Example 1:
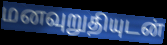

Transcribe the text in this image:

மனவுறுதியுடன்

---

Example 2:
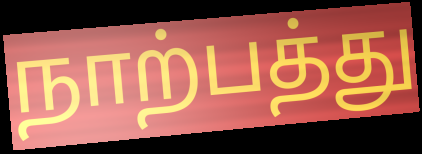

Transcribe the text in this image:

நாற்பத்து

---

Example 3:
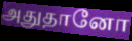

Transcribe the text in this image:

அதுதானோ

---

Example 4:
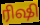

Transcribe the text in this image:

ரிஷி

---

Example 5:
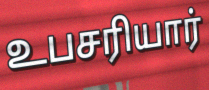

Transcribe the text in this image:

உபசரியார்